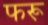
फरू